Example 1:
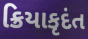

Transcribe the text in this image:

ક્રિયાકૃદંત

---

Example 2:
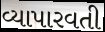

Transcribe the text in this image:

વ્યાપારવતી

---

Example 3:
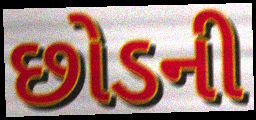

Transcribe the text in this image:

છોડની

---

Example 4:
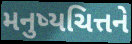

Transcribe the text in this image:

મનુષ્યચિત્તને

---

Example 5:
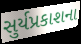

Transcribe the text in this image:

સુર્યપ્રકાશના